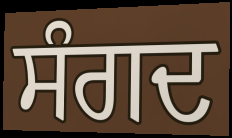
ਸੰਗਦ